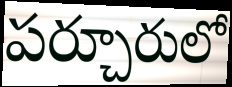
పర్చూరులో